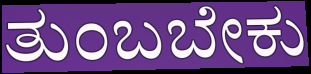
ತುಂಬಬೇಕು